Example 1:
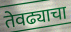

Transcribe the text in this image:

तेवढ्याचा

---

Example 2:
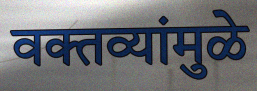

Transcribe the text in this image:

वक्तव्यांमुळे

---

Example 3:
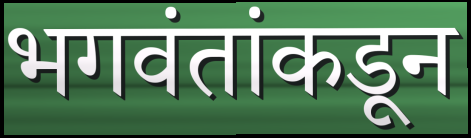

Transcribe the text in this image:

भगवंतांकडून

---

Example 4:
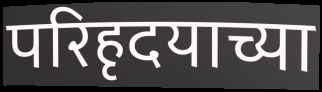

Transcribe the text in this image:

परिहृदयाच्या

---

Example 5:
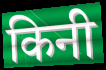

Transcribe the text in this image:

किनी